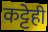
कट्टेही